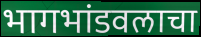
भागभांडवलाचा